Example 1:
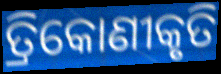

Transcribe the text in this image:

ତ୍ରିକୋଣୀକୃତି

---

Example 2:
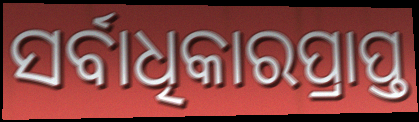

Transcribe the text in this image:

ସର୍ବାଧିକାରପ୍ରାପ୍ତ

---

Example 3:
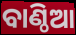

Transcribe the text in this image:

ବାଣ୍ଠିଆ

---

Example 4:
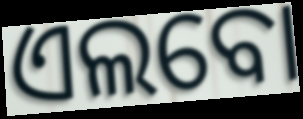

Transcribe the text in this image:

ଏଲବୋ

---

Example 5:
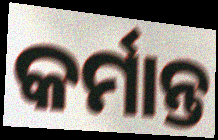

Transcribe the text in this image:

କର୍ମାନ୍ତ